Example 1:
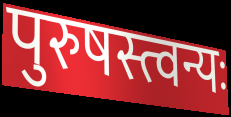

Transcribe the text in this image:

पुरुषस्त्वन्यः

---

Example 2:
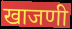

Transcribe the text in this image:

खाजणी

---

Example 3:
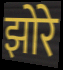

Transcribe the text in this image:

झोरे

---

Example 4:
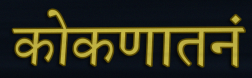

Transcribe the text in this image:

कोकणातनं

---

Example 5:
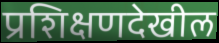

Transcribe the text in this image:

प्रशिक्षणदेखील